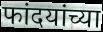
फांदयांच्या